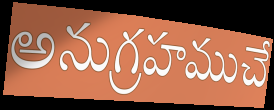
అనుగ్రహముచే